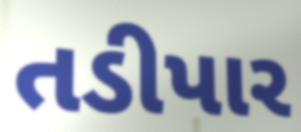
તડીપાર